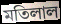
মতিলাল